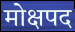
मोक्षपद